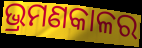
ଭ୍ରମଣକାଳର